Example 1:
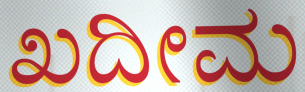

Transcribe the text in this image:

ಖದೀಮ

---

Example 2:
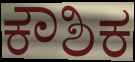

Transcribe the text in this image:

ಕೌಶಿಕ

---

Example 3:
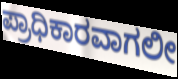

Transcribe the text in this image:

ಪ್ರಾಧಿಕಾರವಾಗಲೀ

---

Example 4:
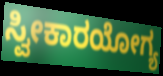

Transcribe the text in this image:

ಸ್ವೀಕಾರಯೋಗ್ಯ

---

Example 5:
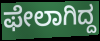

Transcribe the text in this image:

ಫೇಲಾಗಿದ್ದ